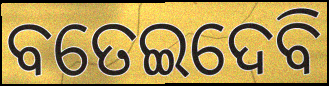
ବତେଇଦେବି